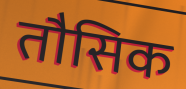
तौसिक